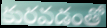
కురవడంతో